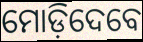
ମୋଡ଼ିଦେବେ